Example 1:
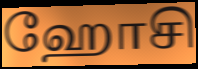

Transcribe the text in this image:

ஹோசி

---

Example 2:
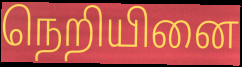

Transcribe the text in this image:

நெறியினை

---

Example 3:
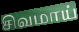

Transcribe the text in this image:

சிவமாய்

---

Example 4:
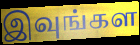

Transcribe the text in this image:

இவுங்கள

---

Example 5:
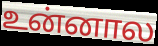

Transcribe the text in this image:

உன்னால